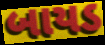
બાયડ